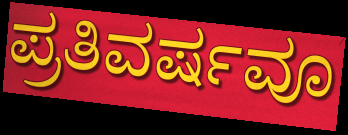
ಪ್ರತಿವರ್ಷವೂ